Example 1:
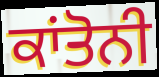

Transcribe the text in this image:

ਕਾਂਤੋਨੀ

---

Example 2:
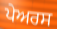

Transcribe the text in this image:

ਪੇਅਰਸ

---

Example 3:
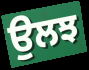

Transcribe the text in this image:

ਉਲਝ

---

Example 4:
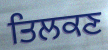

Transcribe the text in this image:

ਤਿਲਕਣ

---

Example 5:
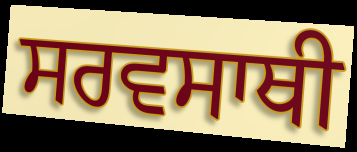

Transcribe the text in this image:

ਸਰਵਸਾਥੀ